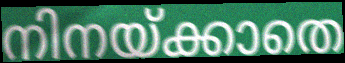
നിനയ്ക്കാതെ